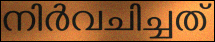
നിർവചിച്ചത്